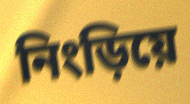
নিংড়িয়ে